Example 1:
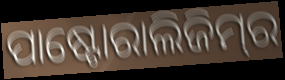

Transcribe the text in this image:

ପାଷ୍ଟୋରାଲିଜିମ୍‌ର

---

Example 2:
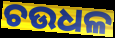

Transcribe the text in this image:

ଚଉଧଳ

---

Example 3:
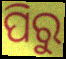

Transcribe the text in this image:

ପିରୁ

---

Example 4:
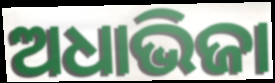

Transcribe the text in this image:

ଅଧାଭିଜା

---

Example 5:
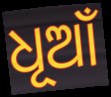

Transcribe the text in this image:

ଧୂଆଁ